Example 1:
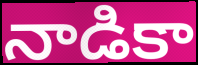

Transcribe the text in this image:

నాడికా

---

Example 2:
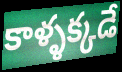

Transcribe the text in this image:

కాళ్ళక్కడే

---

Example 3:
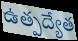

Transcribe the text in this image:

ఉత్పద్యేత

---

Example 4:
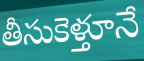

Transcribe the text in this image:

తీసుకెళ్తూనే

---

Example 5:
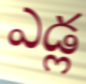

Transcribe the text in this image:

ఎడ్ల